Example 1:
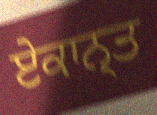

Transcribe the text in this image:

ਏਕਾਨ੍ਤ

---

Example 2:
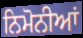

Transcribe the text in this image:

ਨਿਮੋਨੀਆਂ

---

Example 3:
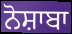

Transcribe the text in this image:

ਨੋਸ਼ਾਬਾ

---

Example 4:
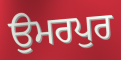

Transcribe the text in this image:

ਉਮਰਪੁਰ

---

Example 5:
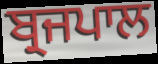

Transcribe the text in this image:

ਬ੍ਰਜਪਾਲ